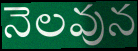
నెలవున